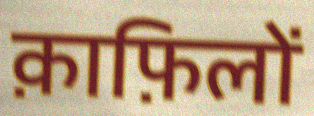
क़ाफ़िलों